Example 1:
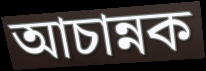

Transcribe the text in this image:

আচান্নক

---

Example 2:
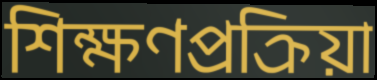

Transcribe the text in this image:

শিক্ষণপ্রক্রিয়া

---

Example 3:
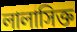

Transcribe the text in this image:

লালাসিক্ত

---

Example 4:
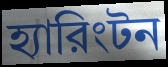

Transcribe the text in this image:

হ্যারিংটন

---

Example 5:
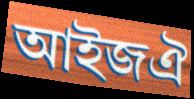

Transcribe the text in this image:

আইজঐ